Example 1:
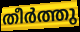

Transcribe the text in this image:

തീർത്തു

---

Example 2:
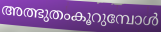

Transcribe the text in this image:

അത്ഭുതംകൂറുമ്പോൾ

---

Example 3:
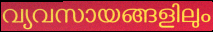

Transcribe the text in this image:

വ്യവസായങ്ങളിലും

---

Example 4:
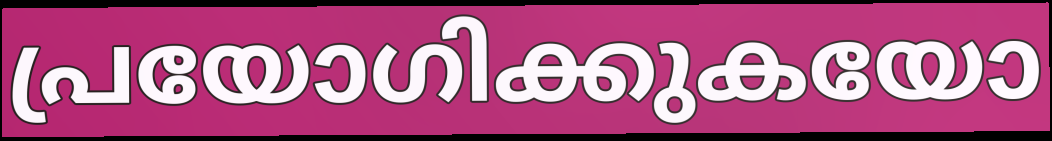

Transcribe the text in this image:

പ്രയോഗിക്കുകയോ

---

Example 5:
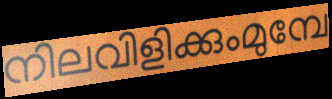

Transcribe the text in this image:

നിലവിളിക്കുംമുമ്പേ